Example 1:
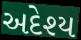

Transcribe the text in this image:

અદેશ્ય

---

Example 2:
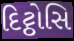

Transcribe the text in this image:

દિટ્ઠોસિ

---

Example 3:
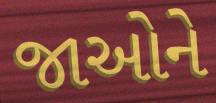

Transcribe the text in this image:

જાઓને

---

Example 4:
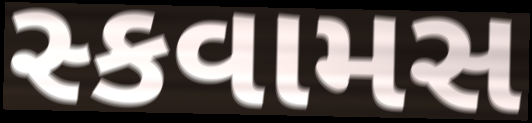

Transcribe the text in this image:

સ્કવામસ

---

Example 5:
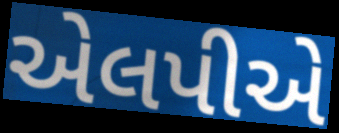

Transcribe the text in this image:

એલપીએ